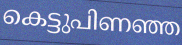
കെട്ടുപിണഞ്ഞ